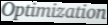
Optimization